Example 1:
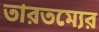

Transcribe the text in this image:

তারতম্যের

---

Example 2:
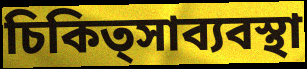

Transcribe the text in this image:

চিকিত্সাব্যবস্থা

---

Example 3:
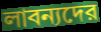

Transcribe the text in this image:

লাবন্যদের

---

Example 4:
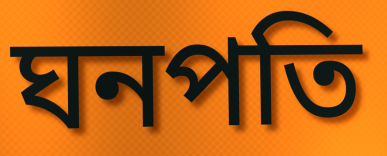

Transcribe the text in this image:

ঘনপতি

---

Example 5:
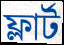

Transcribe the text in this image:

ফ্লার্ট